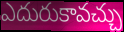
ఎదురుకావచ్చు